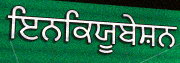
ਇਨਕਿਯੂਬੇਸ਼ਨ